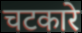
चटकारे